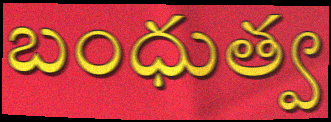
బంధుత్వ